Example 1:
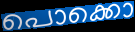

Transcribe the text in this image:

പൊക്കൊ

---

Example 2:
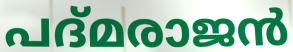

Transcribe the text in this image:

പദ്മരാജൻ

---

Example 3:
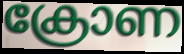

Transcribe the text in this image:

ക്രോണ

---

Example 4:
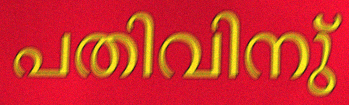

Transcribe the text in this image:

പതിവിനു്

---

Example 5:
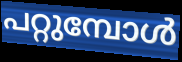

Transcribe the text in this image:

പറ്റുമ്പോൾ